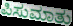
ಪಿಸುಮಾತು